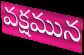
వక్షమున